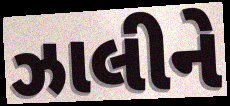
ઝાલીને